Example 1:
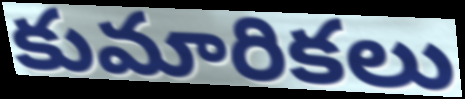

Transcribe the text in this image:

కుమారికలు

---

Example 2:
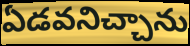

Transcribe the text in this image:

ఏడవనిచ్చాను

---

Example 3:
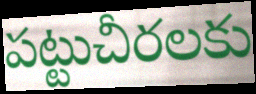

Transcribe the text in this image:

పట్టుచీరలకు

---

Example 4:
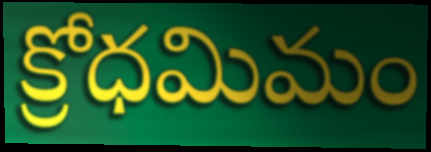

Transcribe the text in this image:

క్రోధమిమం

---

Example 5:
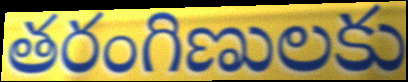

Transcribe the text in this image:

తరంగిణులకు